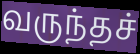
வருந்தச்